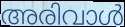
അരിവാൾ